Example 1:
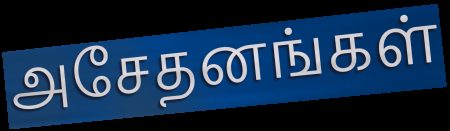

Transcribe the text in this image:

அசேதனங்கள்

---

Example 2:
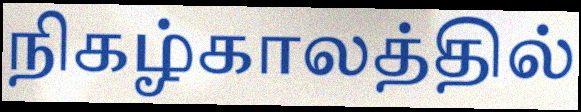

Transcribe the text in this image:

நிகழ்காலத்தில்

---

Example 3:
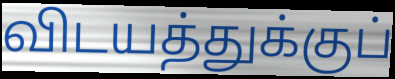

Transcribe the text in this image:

விடயத்துக்குப்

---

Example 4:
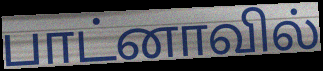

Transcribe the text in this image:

பாட்னாவில்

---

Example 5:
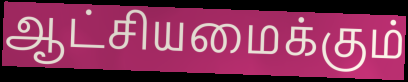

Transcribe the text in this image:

ஆட்சியமைக்கும்